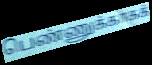
பெண்ணுக்காகக்